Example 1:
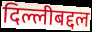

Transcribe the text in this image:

दिल्लीबद्दल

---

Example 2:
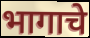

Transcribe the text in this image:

भागाचे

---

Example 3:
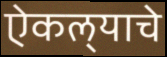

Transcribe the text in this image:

ऐकल्याचे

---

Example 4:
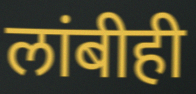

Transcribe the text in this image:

लांबीही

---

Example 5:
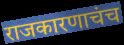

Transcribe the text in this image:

राजकारणाचंच